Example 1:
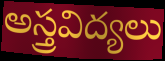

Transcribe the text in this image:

అస్త్రవిద్యలు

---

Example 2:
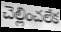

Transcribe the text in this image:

చెల్లించలేక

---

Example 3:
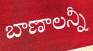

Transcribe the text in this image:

బాణాలన్నీ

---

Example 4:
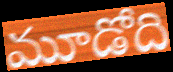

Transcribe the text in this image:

మూడోది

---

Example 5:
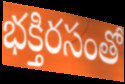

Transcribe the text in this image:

భక్తిరసంతో